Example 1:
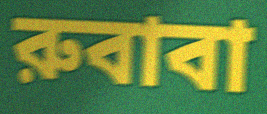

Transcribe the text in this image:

রুবাবা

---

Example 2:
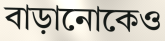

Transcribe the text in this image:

বাড়ানোকেও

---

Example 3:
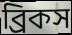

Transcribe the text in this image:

ব্রিকস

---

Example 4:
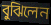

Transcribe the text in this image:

বুঝিলেন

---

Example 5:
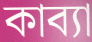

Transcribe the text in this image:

কাব্যা